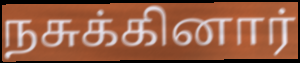
நசுக்கினார்